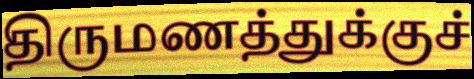
திருமணத்துக்குச்